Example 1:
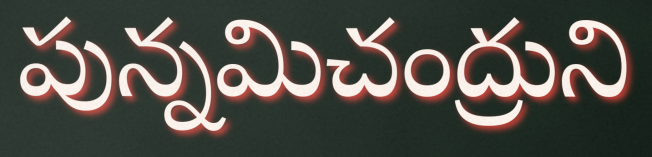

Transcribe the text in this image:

పున్నమిచంద్రుని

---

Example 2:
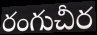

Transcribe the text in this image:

రంగుచీర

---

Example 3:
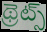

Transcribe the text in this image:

థ్రెట్స్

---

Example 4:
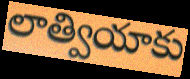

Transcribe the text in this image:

లాత్వియాకు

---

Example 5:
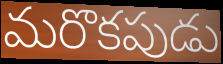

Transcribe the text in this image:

మరొకపుడు